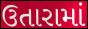
ઉતારામાં